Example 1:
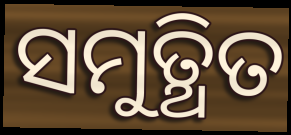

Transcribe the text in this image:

ସମୁତ୍ଥିତ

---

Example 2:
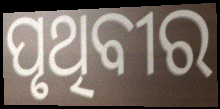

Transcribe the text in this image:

ପୃଥିବୀର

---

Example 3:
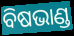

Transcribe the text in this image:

ବିଷଭାଣ୍ଡ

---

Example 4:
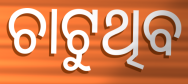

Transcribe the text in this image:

ଚାଟୁଥିବ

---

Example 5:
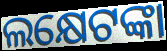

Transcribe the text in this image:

ଲକ୍ଷେଟଙ୍କା